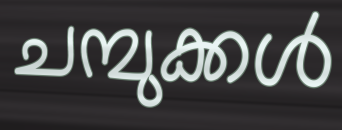
ചമ്പുക്കൾ